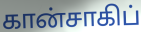
கான்சாகிப்